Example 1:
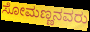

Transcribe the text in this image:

ಸೋಮಣ್ಣನವರು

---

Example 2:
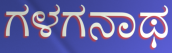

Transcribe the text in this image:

ಗಳಗನಾಥ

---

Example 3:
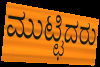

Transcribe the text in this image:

ಮುಟ್ಟಿದರು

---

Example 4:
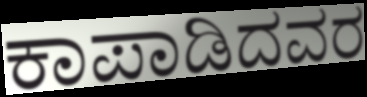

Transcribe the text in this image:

ಕಾಪಾಡಿದವರ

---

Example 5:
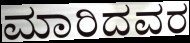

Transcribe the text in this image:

ಮಾರಿದವರ